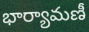
భార్యామణీ